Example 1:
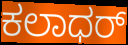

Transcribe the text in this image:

ಕಲಾಧರ್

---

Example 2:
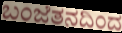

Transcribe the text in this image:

ಬಂಜೆತನದಿಂದ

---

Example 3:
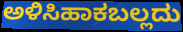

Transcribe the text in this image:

ಅಳಿಸಿಹಾಕಬಲ್ಲದು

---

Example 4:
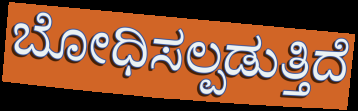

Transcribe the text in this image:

ಬೋಧಿಸಲ್ಪಡುತ್ತಿದೆ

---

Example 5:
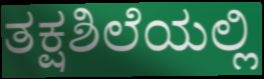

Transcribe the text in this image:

ತಕ್ಷಶಿಲೆಯಲ್ಲಿ